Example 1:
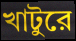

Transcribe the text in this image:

খাটুরে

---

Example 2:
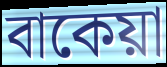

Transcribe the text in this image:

বাকেয়া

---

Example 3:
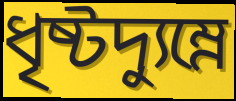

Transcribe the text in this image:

ধৃষ্টদ্যুম্নে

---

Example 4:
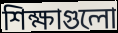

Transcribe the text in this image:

শিক্ষাগুলো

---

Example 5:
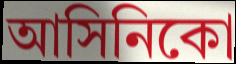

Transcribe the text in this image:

আসিনিকো